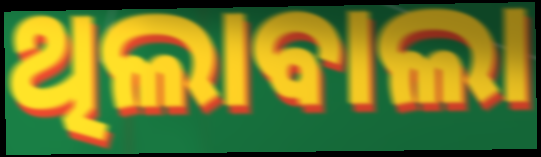
ଥିଲାବାଲା